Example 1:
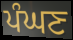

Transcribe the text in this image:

ਪੰਘਣ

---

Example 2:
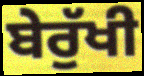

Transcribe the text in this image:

ਬੇਰੁੱਖੀ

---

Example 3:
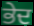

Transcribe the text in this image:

ਭੇਦ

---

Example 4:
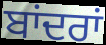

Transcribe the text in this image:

ਬਾਂਦਰਾਂ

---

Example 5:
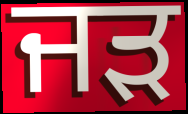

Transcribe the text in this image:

ਜੜ